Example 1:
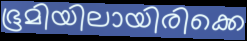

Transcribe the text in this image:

ഭൂമിയിലായിരിക്കെ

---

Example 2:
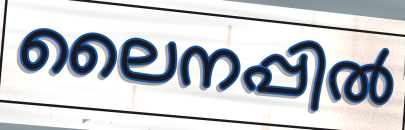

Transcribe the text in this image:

ലൈനപ്പിൽ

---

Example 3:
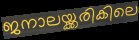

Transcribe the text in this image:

ജനാലയ്ക്കരികിലെ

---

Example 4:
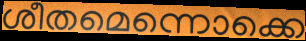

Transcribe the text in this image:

ശീതമെന്നൊക്കെ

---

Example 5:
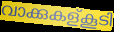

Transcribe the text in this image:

വാക്കുകള്കൂടി